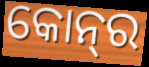
କୋନ୍‌ର